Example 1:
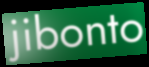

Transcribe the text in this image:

jibonto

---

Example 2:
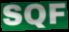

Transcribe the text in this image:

SQF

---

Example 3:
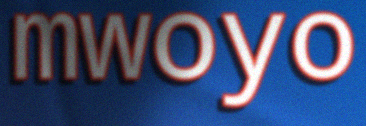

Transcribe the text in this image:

mwoyo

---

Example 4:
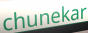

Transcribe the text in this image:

chunekar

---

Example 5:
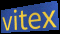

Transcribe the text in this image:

vitex